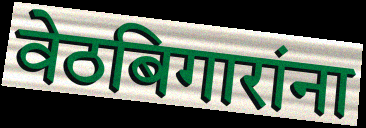
वेठबिगारांना